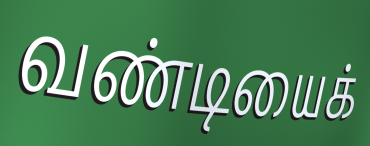
வண்டியைக்